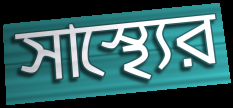
সাস্থ্যের